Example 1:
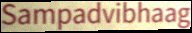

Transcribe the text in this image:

Sampadvibhaag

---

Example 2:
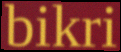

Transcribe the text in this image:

bikri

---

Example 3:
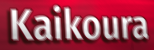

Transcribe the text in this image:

Kaikoura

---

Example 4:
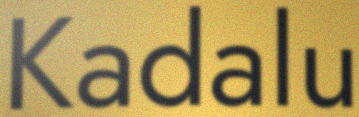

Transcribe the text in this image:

Kadalu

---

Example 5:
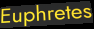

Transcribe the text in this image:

Euphretes